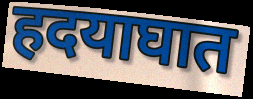
हदयाघात